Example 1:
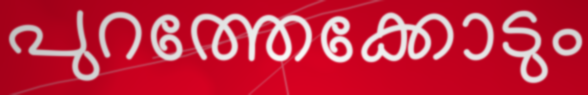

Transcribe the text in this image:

പുറത്തേക്കോടും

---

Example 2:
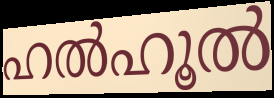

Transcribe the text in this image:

ഹൽഹൂൽ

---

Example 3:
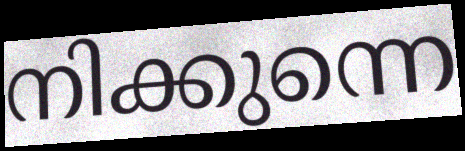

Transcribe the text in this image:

നിക്കുന്നെ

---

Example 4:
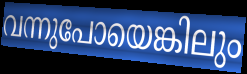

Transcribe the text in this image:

വന്നുപോയെങ്കിലും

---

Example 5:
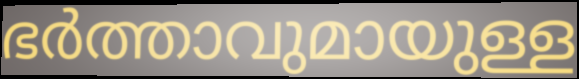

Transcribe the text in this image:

ഭർത്താവുമായുള്ള